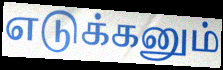
எடுக்கனும்